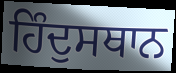
ਹਿੰਦੁਸਥਾਨ